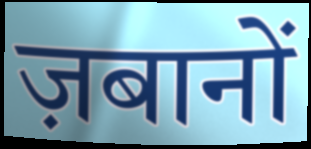
ज़बानों